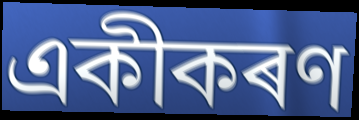
একীকৰণ